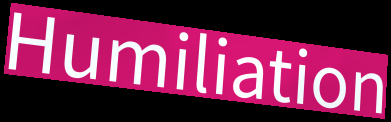
Humiliation